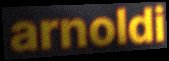
arnoldi